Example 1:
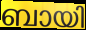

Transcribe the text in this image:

ബായി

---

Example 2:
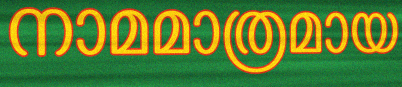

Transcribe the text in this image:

നാമമാത്രമായ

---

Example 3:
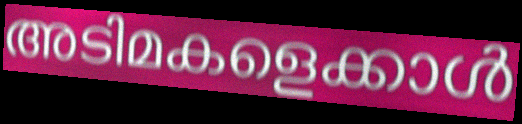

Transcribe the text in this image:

അടിമകളെക്കാൾ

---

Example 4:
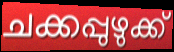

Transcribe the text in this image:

ചക്കപ്പുഴുക്ക്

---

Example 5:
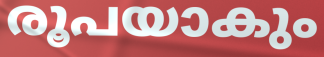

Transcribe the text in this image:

രൂപയാകും